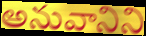
అనువానిని